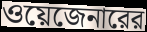
ওয়েজেনারের